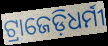
ଟ୍ରାଜେଡ଼ିଧର୍ମୀ